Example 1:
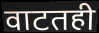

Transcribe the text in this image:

वाटतही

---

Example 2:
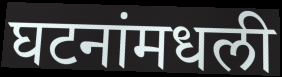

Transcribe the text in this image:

घटनांमधली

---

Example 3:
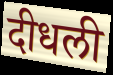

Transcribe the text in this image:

दीधली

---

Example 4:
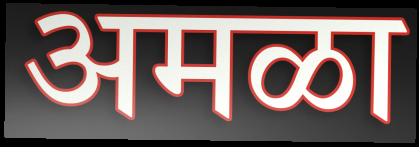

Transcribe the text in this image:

अमळा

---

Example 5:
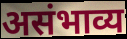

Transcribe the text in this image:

असंभाव्य